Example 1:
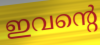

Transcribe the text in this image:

ഇവന്റെ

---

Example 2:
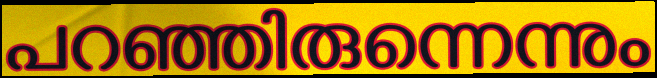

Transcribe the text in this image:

പറഞ്ഞിരുന്നെന്നും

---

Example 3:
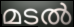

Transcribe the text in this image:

മടൽ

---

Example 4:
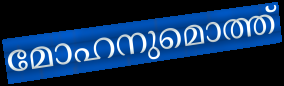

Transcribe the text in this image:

മോഹനുമൊത്ത്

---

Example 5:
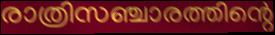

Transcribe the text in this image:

രാത്രിസഞ്ചാരത്തിന്റെ